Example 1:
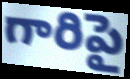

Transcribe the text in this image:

గారిపై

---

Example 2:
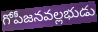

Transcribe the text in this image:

గోపీజనవల్లభుడు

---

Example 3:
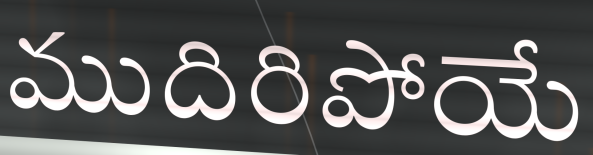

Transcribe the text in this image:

ముదిరిపోయే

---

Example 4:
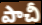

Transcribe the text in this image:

పాచీ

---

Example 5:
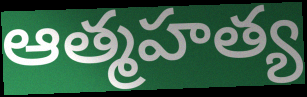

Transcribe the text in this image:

ఆత్మహత్య